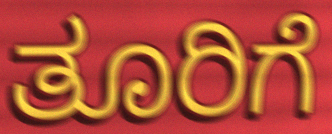
ತೂರಿಗೆ